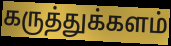
கருத்துக்களம்